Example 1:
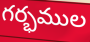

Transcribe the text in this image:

గర్భముల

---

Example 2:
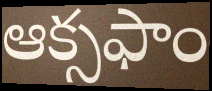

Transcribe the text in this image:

ఆక్సఫాం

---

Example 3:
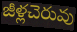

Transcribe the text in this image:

జీళ్లచెరువు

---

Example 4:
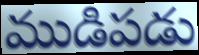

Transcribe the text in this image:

ముడిపడు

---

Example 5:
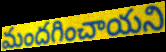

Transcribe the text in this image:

మందగించాయని